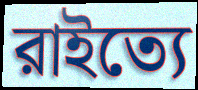
রাইত্যে